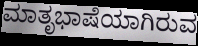
ಮಾತೃಭಾಷೆಯಾಗಿರುವ